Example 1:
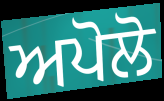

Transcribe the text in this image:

ਅਪੋਲੋ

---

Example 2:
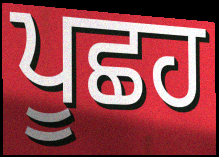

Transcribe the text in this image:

ਪੂਛਹ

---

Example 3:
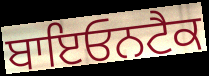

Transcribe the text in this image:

ਬਾਇਓਨਟੈਕ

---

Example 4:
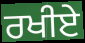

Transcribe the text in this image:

ਰਖੀਏ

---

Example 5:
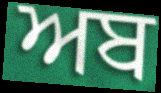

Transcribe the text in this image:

ਅਬ